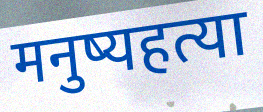
मनुष्यहत्या